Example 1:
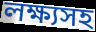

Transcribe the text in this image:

লক্ষ্যসহ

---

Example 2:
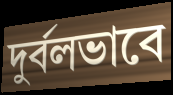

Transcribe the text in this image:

দুর্বলভাবে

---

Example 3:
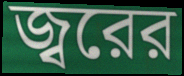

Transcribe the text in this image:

জ্বরের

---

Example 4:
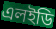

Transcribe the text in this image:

এলইডি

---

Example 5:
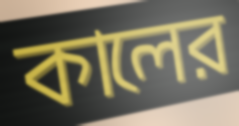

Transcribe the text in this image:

কালের